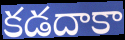
కడదాకా